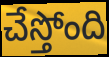
చేస్తోంది